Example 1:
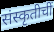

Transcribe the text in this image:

संस्कृतीचीं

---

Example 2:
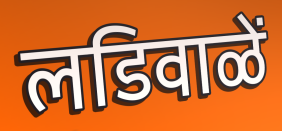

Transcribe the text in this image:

लडिवाळें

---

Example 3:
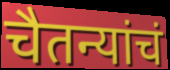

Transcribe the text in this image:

चैतन्यांचं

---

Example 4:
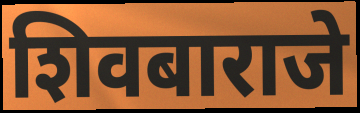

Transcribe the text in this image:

शिवबाराजे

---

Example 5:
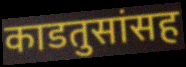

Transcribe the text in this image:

काडतुसांसह